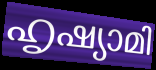
ഹൃഷ്യാമി